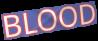
BLOOD